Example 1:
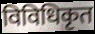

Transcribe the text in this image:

विविधिकृत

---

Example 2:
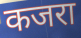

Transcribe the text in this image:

कजरा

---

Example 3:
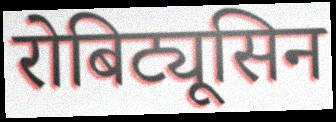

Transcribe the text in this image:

रोबिट्यूसिन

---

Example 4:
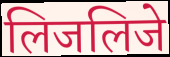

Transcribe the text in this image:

लिजलिजे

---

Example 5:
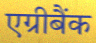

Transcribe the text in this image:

एग्रीबैंक